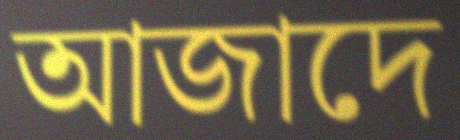
আজাদে